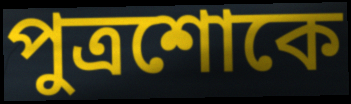
পুত্রশোকে